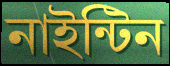
নাইন্টিন